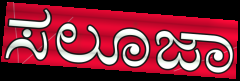
ಸಲೂಜಾ